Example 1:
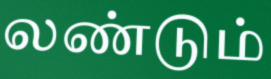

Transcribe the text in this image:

லண்டும்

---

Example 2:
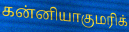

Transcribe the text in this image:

கன்னியாகுமரிக்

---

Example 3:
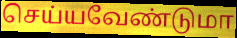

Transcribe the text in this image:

செய்யவேண்டுமா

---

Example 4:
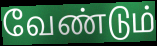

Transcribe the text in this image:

வேண்டும்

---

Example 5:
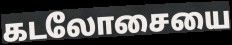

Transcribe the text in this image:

கடலோசையை